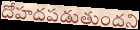
దోహదపడుతుందని